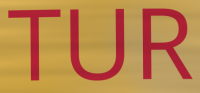
TUR